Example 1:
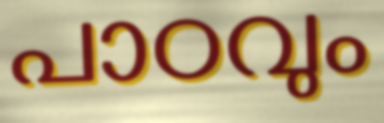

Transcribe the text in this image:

പാഠവും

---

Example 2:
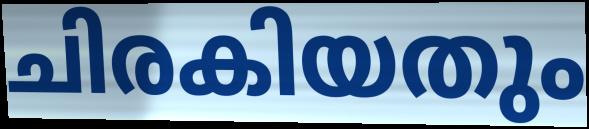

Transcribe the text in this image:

ചിരകിയതും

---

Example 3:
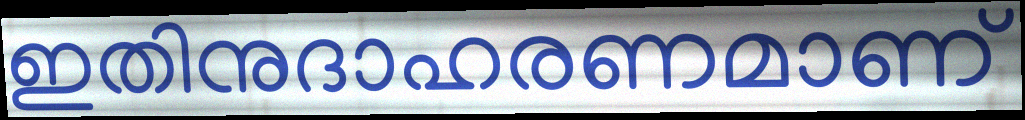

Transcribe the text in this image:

ഇതിനുദാഹരണമാണ്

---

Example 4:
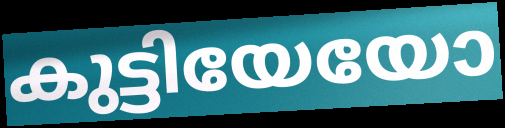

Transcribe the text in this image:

കുട്ടിയേയോ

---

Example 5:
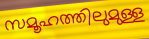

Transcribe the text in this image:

സമൂഹത്തിലുമുള്ള